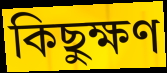
কিছুক্ষণ